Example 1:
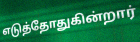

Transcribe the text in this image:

எடுத்தோதுகின்றார்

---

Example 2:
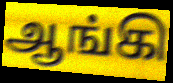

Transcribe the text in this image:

ஆங்கி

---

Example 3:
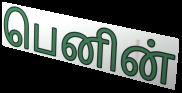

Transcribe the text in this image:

பெனின்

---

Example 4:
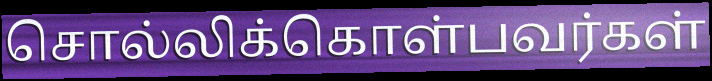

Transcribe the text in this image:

சொல்லிக்கொள்பவர்கள்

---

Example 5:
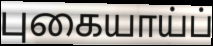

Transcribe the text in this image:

புகையாய்ப்